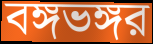
বঙ্গভঙ্গর